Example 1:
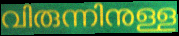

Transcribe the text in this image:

വിരുന്നിനുള്ള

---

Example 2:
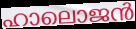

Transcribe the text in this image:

ഹാലൊജൻ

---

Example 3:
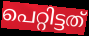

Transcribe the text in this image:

പെറ്റിട്ടത്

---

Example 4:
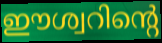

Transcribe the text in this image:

ഈശ്വറിന്റെ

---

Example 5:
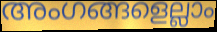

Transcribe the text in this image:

അംഗങ്ങളെല്ലാം